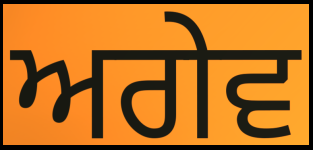
ਅਗੇਵ